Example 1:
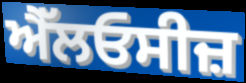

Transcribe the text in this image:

ਐੱਲਓਸੀਜ਼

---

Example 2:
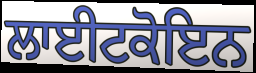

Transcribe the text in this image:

ਲਾਈਟਕੋਇਨ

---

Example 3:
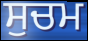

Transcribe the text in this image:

ਸੁਚਮ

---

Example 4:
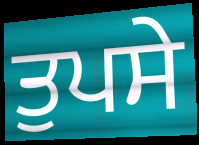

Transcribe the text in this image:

ਤੁਪਸੇ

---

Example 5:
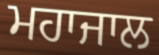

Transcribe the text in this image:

ਮਹਾਜਾਲ